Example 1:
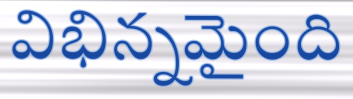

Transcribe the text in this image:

విభిన్నమైంది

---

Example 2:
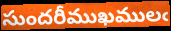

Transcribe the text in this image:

సుందరీముఖములఁ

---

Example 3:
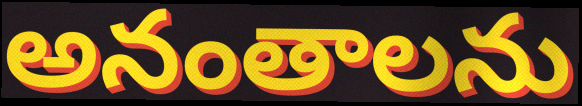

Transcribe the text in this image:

అనంతాలను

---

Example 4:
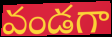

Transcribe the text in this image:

వండగా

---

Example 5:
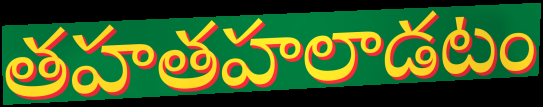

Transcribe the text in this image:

తహతహలాడటం